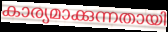
കാര്യമാക്കുന്നതായി